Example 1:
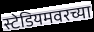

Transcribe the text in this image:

स्टेडियमवरच्या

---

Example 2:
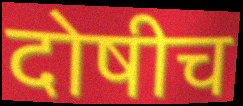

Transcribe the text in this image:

दोषीच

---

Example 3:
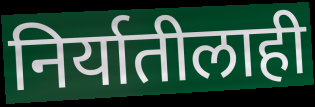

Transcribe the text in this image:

निर्यातीलाही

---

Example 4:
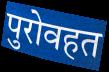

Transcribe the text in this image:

पुरोवहत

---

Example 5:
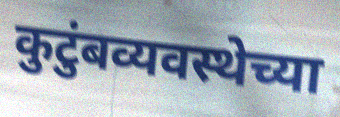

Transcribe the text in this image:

कुटुंबव्यवस्थेच्या